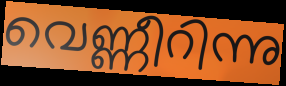
വെണ്ണീറിന്നു